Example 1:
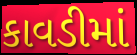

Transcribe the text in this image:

કાવડીમાં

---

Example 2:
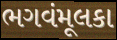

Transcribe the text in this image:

ભગવંમૂલકા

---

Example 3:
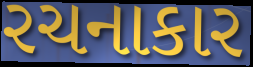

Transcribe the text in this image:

રચનાકાર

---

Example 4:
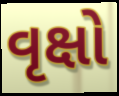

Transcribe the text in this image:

વૃક્ષો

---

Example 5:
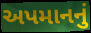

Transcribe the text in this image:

અપમાનનું